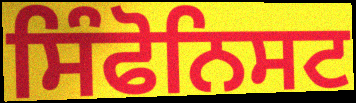
ਸਿੰਫੋਨਿਸਟ